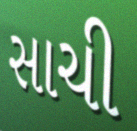
સાચી